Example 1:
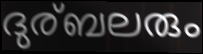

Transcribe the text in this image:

ദുര്ബലരും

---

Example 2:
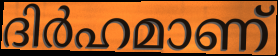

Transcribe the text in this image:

ദിർഹമാണ്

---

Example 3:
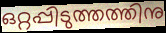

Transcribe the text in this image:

ഒറ്റപ്പിടുത്തത്തിനു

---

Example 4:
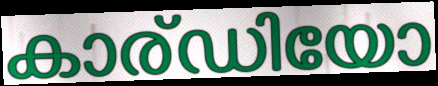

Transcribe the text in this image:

കാര്ഡിയോ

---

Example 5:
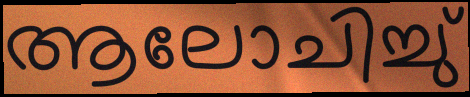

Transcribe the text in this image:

ആലോചിച്ചു്